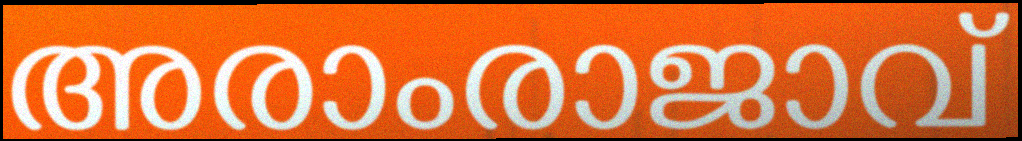
അരാംരാജാവ്